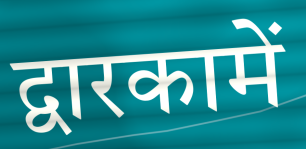
द्वारकामें